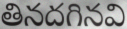
తినదగినవి